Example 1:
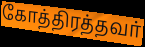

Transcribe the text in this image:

கோத்திரத்தவர்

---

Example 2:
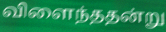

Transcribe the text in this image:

விளைந்ததன்று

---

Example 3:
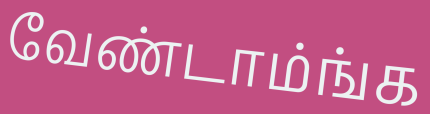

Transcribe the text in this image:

வேண்டாம்ங்க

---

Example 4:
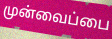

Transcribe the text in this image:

முன்வைப்பை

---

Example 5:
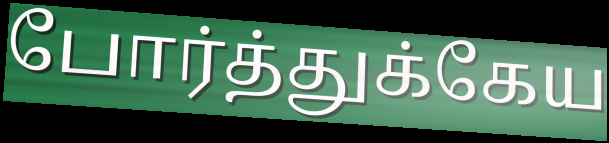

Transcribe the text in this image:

போர்த்துக்கேய